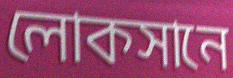
লোকসানে